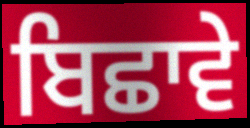
ਬਿਛਾਵੇ